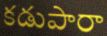
కడుపారా